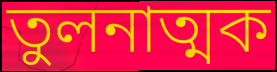
তুলনাত্মক